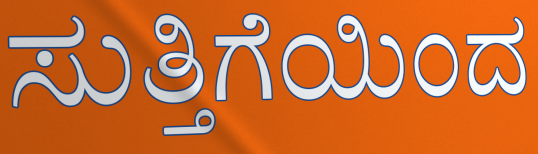
ಸುತ್ತಿಗೆಯಿಂದ